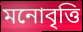
মনোবৃত্তি